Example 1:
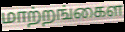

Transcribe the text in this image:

மாற்றங்கைள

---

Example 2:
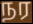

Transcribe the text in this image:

நர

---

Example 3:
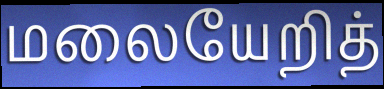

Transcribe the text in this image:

மலையேறித்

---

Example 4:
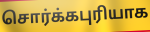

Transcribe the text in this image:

சொர்க்கபுரியாக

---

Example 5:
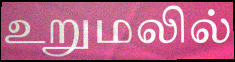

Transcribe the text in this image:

உறுமலில்